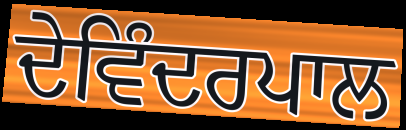
ਦੇਵਿੰਦਰਪਾਲ